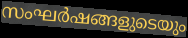
സംഘർഷങ്ങളുടെയും